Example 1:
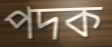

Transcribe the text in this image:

পদক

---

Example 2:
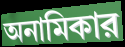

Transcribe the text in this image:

অনামিকার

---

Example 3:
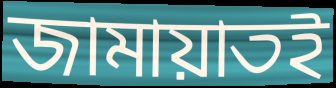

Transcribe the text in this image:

জামায়াতই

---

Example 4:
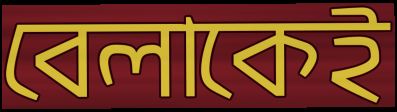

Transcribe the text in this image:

বেলাকেই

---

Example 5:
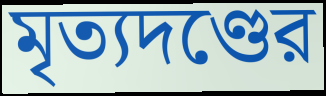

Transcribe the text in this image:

মৃত্যদণ্ডের